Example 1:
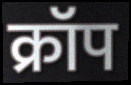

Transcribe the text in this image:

क्रॉप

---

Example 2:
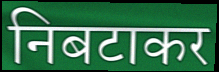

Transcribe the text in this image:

निबटाकर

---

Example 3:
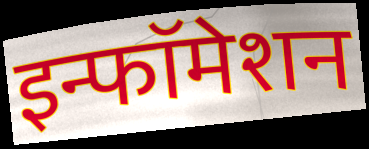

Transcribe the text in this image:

इन्फॉमेशन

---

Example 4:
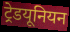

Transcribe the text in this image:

ट्रेडयूनियन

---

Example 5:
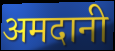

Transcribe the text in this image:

अमदानी